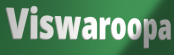
Viswaroopa